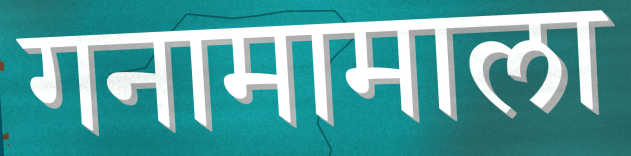
गनामामाला